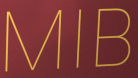
MIB